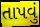
તાપવું